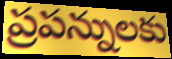
ప్రపన్నులకు